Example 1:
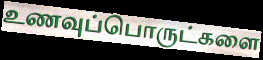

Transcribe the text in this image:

உணவுப்பொருட்களை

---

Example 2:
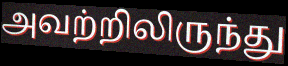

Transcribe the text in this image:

அவற்றிலிருந்து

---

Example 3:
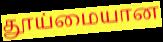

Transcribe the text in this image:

தூய்மையான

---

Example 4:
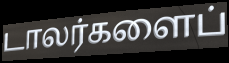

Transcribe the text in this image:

டாலர்களைப்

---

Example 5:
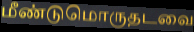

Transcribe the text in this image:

மீண்டுமொருதடவை